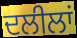
ਦਲੀਲਾਂ